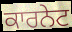
ਕਾਰਨੇਟ